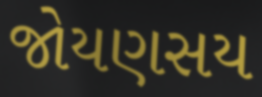
જોયણસય